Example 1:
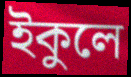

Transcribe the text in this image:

ইকুলে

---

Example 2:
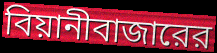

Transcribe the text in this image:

বিয়ানীবাজারের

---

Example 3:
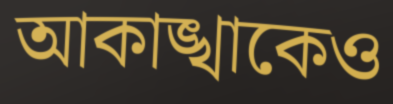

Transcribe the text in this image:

আকাঙ্খাকেও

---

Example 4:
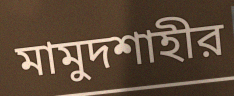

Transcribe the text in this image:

মামুদশাহীর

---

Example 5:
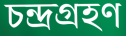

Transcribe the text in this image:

চন্দ্রগ্রহণ